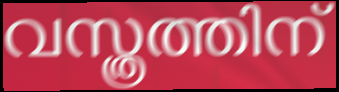
വസ്ത്രത്തിന്